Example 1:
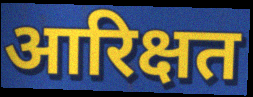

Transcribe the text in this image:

आरिक्षत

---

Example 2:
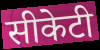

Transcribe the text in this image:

सीकेटी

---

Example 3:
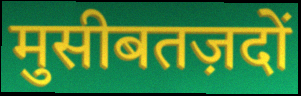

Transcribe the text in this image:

मुसीबतज़दों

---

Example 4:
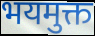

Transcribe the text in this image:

भयमुक्त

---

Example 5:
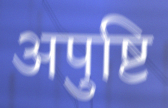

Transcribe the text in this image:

अपुष्टि